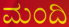
ಮಂದಿ